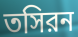
তসিরন